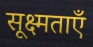
सूक्ष्मताएँ